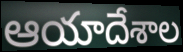
ఆయాదేశాల